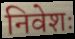
निवेशः